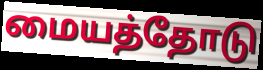
மையத்தோடு